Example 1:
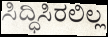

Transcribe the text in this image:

ಸಿದ್ಧಿಸಿರಲಿಲ್ಲ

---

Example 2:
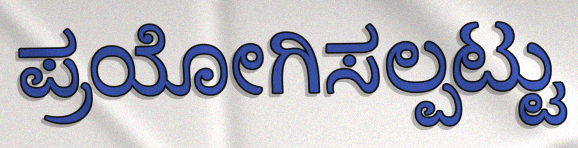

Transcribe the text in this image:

ಪ್ರಯೋಗಿಸಲ್ಪಟ್ಟು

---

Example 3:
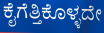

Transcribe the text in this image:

ಕೈಗೆತ್ತಿಕೊಳ್ಳದೇ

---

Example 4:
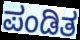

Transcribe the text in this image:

ಪಂಡಿತ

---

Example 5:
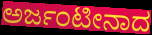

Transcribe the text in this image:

ಅರ್ಜಂಟೀನಾದ